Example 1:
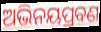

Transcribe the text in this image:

ଅଭିନୟପ୍ରବଣ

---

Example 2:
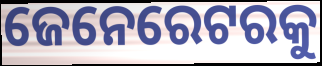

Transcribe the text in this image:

ଜେନେରେଟରକୁ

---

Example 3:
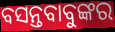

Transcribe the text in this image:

ବସନ୍ତବାବୁଙ୍କର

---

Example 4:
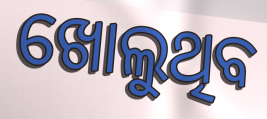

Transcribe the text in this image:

ଖୋଲୁଥିବ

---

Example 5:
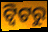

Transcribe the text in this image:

ଟ୍ବିଟରୁ